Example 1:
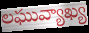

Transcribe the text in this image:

లఘువ్యాఖ్య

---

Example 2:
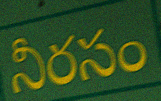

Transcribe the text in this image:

నీరసం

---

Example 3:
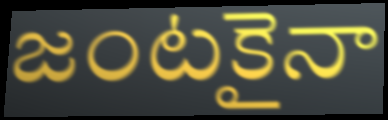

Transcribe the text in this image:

జంటకైనా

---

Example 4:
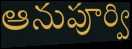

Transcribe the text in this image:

ఆనుపూర్వి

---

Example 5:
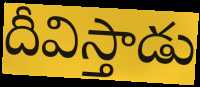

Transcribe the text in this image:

దీవిస్తాడు